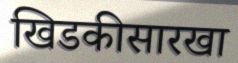
खिडकीसारखा